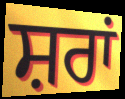
ਸ਼ਰਾਂ